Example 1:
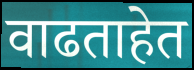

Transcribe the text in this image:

वाढताहेत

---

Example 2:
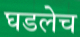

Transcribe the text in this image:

घडलेच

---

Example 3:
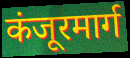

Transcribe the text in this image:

कंजूरमार्ग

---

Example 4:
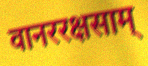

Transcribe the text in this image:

वानररक्षसाम्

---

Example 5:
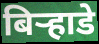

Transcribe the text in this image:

बिऱ्हाडे